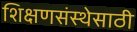
शिक्षणसंस्थेसाठी